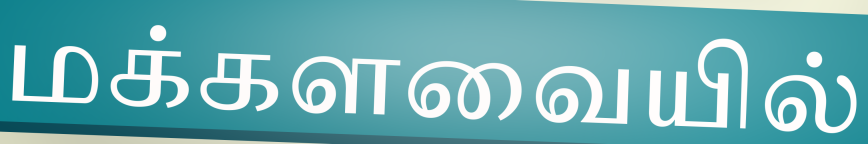
மக்களவையில்